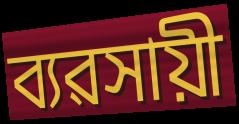
ব্যৱসায়ী